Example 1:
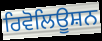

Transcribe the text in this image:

ਰਿਵੋਲਿਊਸ਼ਨ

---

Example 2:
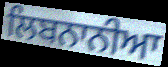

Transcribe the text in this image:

ਲਿਬਨਾਨੀਆ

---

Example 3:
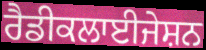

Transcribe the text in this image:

ਰੈਡੀਕਲਾਈਜੇਸ਼ਨ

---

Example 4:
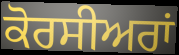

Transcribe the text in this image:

ਕੋਰਸੀਅਰਾਂ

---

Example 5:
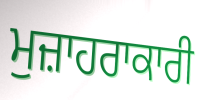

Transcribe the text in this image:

ਮੁਜ਼ਾਹਰਾਕਾਰੀ